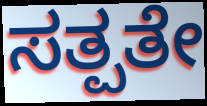
ಸತ್ಪತೇ